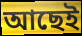
আছেই